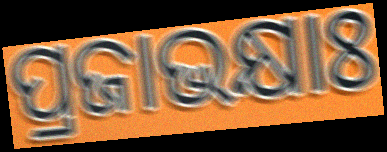
ପ୍ରଜାଭକ୍ଷାଃ